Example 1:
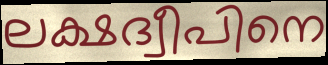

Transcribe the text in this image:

ലക്ഷദ്വീപിനെ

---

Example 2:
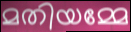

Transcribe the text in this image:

മതിയമ്മേ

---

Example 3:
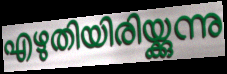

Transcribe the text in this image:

എഴുതിയിരിയ്ക്കുന്നു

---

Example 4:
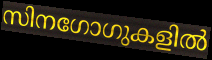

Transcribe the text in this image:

സിനഗോഗുകളിൽ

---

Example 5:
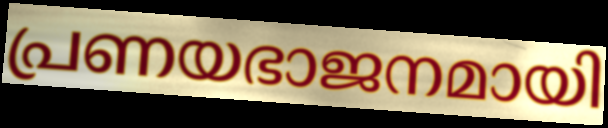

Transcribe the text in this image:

പ്രണയഭാജനമായി